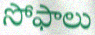
సోఫాలు